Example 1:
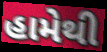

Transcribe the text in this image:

હામેથી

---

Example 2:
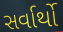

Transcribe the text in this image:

સર્વાર્થો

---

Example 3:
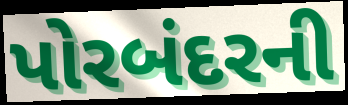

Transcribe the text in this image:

પોરબંદરની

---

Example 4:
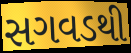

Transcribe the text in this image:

સગવડથી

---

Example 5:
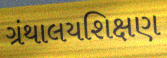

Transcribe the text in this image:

ગ્રંથાલયશિક્ષણ